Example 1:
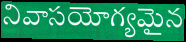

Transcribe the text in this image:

నివాసయోగ్యమైన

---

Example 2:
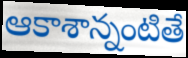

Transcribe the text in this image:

ఆకాశాన్నంటితే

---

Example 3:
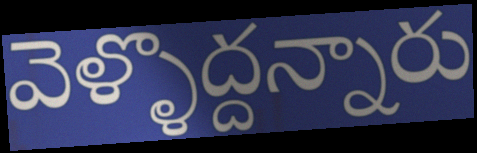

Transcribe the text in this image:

వెళ్ళొద్దన్నారు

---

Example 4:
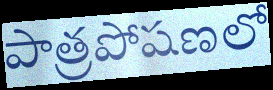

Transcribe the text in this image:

పాత్రపోషణలో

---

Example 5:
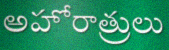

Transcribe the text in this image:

అహోరాత్రులు